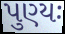
પુણ્યઃ